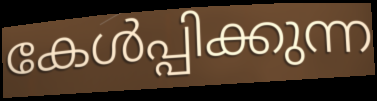
കേൾപ്പിക്കുന്ന